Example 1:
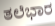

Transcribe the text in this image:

ತಲೆಭಾರ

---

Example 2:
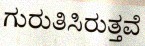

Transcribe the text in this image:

ಗುರುತಿಸಿರುತ್ತವೆ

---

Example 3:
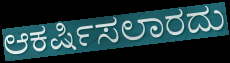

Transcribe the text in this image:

ಆಕರ್ಷಿಸಲಾರದು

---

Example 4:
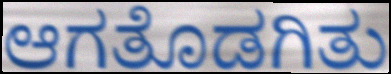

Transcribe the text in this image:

ಆಗತೊಡಗಿತು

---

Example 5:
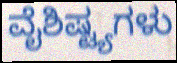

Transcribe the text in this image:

ವೈಶಿಷ್ಟ್ಯಗಳು